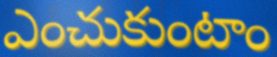
ఎంచుకుంటాం